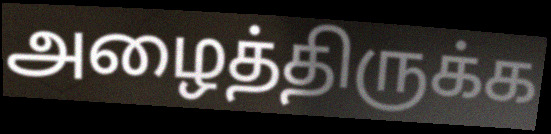
அழைத்திருக்க